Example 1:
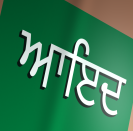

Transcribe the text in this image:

ਆਇਦ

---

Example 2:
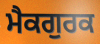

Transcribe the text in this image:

ਮੈਕਗੁਰਕ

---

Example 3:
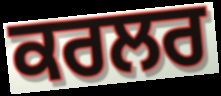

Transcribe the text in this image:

ਕਰਲਰ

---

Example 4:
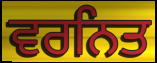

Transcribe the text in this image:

ਵਰਨਿਤ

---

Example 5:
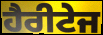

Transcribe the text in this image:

ਹੈਰੀਟੇਜ